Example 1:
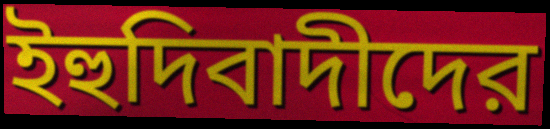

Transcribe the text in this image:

ইহুদিবাদীদের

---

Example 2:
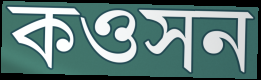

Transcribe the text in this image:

কওসন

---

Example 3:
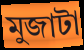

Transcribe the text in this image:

মুজাটা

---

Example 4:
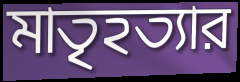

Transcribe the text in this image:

মাতৃহত্যার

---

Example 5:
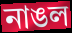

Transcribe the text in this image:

নাঙল